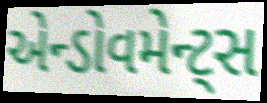
એન્ડોવમેન્ટ્સ